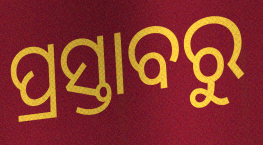
ପ୍ରସ୍ତାବରୁ